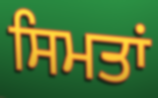
ਸਿਮਤਾਂ